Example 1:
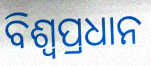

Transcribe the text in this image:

ବିଶ୍ୱପ୍ରଧାନ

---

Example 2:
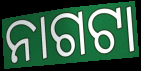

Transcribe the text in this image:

ନାଗଟା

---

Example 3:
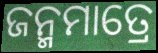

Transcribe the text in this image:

ଜନ୍ମମାତ୍ରେ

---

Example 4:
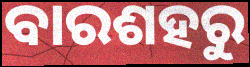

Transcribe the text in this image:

ବାରଶହରୁ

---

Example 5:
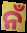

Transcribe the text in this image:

ନଁ